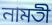
নামতী